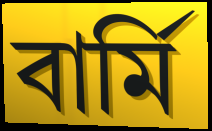
বার্মি